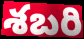
శబరి